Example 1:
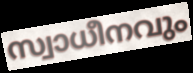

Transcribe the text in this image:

സ്വാധീനവും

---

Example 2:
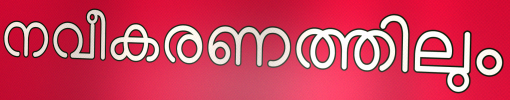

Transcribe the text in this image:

നവീകരണത്തിലും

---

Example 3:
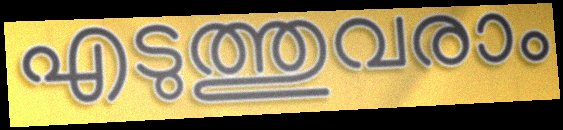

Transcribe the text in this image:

എടുത്തുവരാം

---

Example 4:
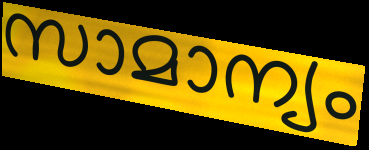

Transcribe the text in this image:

സാമാന്യം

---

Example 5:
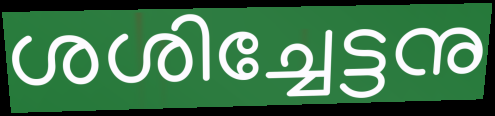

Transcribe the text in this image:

ശശിച്ചേട്ടനു